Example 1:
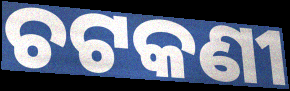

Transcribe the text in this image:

ଚଟକଣୀ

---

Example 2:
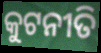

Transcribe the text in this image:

କୁଟନୀତି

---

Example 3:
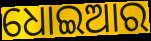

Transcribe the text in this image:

ଧୋଇଆର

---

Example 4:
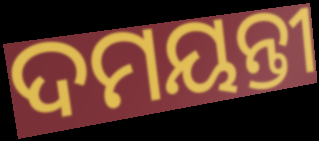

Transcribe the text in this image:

ଦମୟନ୍ତୀ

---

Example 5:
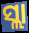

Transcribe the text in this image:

ସ୍ଲା